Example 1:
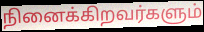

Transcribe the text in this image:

நினைக்கிறவர்களும்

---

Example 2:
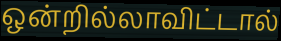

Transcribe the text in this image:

ஒன்றில்லாவிட்டால்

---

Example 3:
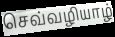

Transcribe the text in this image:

செவ்வழியாழ்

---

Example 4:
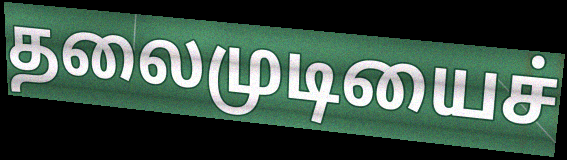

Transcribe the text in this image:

தலைமுடியைச்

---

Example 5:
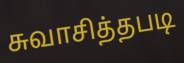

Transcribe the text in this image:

சுவாசித்தபடி